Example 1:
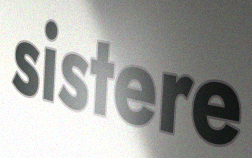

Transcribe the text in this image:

sistere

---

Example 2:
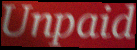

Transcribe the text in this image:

Unpaid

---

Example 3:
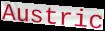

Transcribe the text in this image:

Austric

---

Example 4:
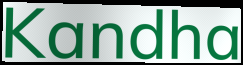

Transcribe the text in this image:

Kandha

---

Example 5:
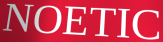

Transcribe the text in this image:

NOETIC